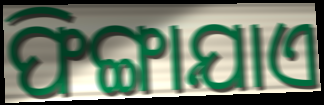
ଫିଙ୍ଗାଯାଏ